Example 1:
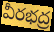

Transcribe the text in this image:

వీరభద్ర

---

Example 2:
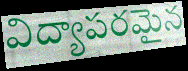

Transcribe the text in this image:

విద్యాపరమైన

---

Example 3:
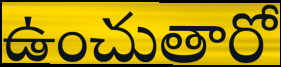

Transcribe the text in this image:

ఉంచుతారో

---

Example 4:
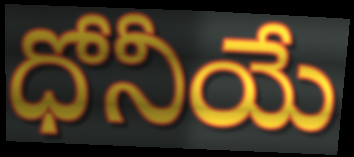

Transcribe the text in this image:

ధోనీయే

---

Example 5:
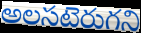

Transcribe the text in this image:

అలసటెరుగని